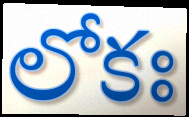
లోకః